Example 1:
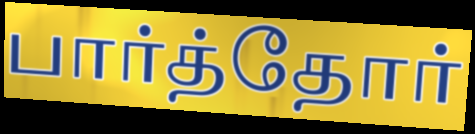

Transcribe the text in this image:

பார்த்தோர்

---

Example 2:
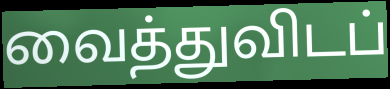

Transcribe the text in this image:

வைத்துவிடப்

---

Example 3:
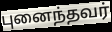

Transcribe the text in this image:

புனைந்தவர்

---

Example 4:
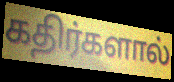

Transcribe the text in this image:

கதிர்களால்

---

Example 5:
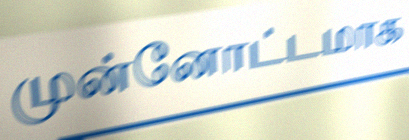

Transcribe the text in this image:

முன்னோட்டமாக